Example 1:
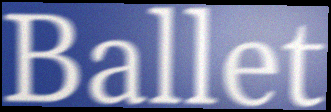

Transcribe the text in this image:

Ballet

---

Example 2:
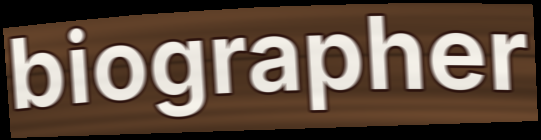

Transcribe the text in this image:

biographer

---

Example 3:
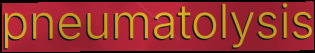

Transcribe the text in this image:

pneumatolysis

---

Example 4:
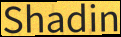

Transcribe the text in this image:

Shadin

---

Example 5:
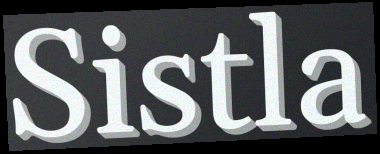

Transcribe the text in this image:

Sistla